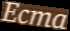
Ecma